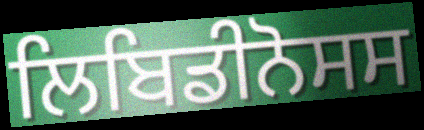
ਲਿਬਿਡੀਨੋਸਸ